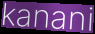
kanani